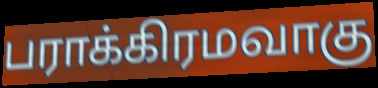
பராக்கிரமவாகு